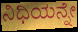
ನಿಧಿಯನ್ನೇ